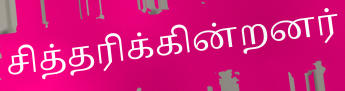
சித்தரிக்கின்றனர்